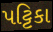
પટ્ટિકા